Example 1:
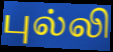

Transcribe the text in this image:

புல்லி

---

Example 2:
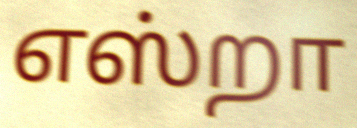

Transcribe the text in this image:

எஸ்றா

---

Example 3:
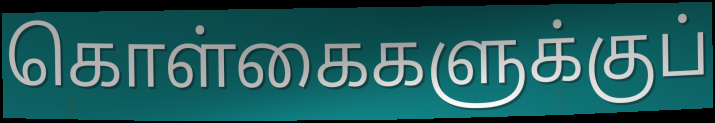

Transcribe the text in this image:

கொள்கைகளுக்குப்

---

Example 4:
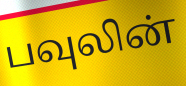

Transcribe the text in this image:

பவுலின்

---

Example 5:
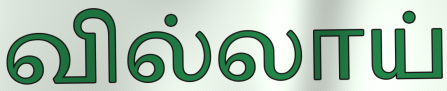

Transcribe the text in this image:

வில்லாய்